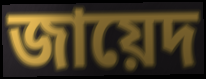
জায়েদ